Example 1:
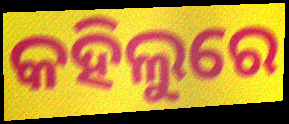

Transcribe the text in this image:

କହିଲୁରେ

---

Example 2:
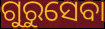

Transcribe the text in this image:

ଗୁରୁସେବା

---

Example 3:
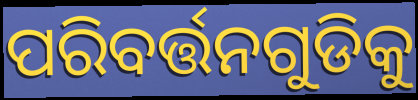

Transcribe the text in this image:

ପରିବର୍ତ୍ତନଗୁଡିକୁ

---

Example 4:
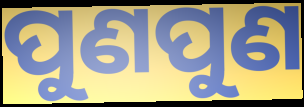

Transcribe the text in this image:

ପୁଣପୁଣ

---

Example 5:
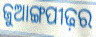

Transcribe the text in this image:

ଜୁଆଙ୍ଗପୀଢ଼ର